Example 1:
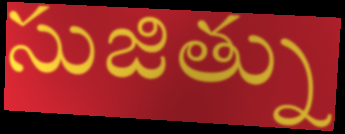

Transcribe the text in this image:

సుజిత్ను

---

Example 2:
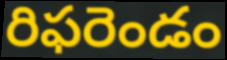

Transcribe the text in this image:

రిఫరెండం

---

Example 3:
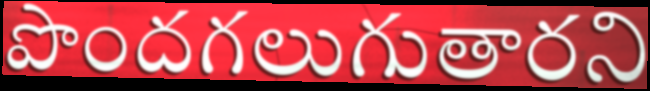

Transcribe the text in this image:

పొందగలుగుతారని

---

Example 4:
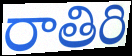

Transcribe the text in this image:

రాతిరి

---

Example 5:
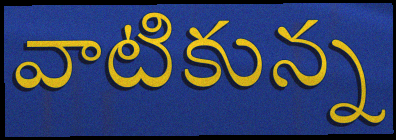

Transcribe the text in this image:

వాటికున్న